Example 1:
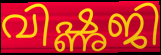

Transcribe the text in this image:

വിഷ്ണുജി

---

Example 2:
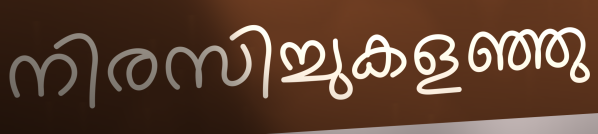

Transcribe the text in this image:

നിരസിച്ചുകളഞ്ഞു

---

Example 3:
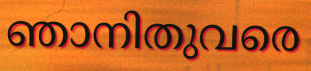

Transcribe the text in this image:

ഞാനിതുവരെ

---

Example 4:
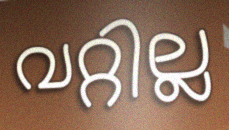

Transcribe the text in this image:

വറ്റില്ല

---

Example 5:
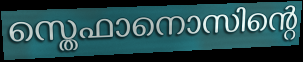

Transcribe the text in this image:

സ്തെഫാനൊസിന്റെ